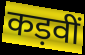
कड़वीं